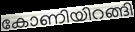
കോണിയിറങ്ങി